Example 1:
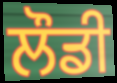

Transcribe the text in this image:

ਲੌਡੀ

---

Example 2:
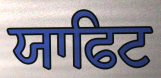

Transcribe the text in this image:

ਯਾਫਿਟ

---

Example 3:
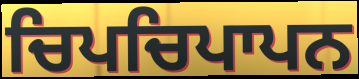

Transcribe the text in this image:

ਚਿਪਚਿਪਾਪਨ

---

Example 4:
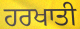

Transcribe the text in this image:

ਹਰਖਾਤੀ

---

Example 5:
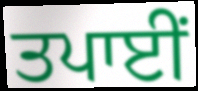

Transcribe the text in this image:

ਤਪਾਈਂ